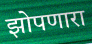
झोपणारा